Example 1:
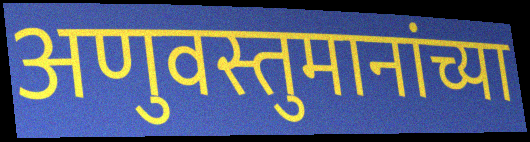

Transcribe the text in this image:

अणुवस्तुमानांच्या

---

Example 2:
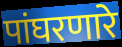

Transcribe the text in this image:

पांघरणारे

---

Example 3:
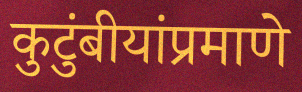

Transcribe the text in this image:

कुटुंबीयांप्रमाणे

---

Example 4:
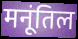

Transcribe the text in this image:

मनूंतिल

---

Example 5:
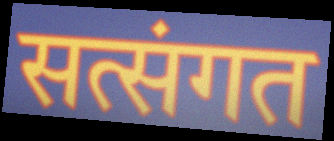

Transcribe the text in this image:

सत्संगत